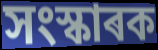
সংস্কাৰক